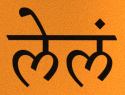
लेलं